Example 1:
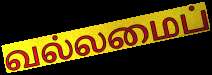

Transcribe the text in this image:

வல்லமைப்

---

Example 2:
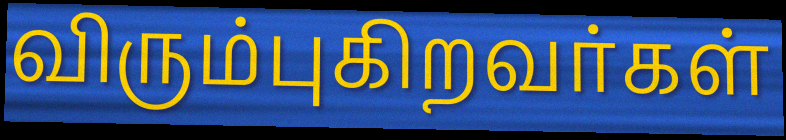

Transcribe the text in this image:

விரும்புகிறவர்கள்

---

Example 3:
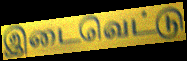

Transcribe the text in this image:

இடைவெட்டு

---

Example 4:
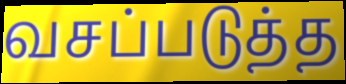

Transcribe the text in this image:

வசப்படுத்த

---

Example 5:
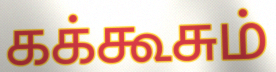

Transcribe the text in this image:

கக்கூசும்